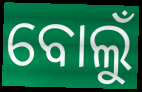
ବୋଲୁଁ